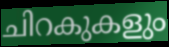
ചിറകുകളും